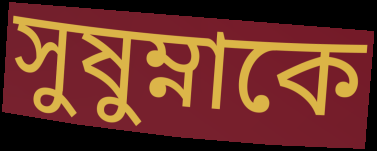
সুষুম্নাকে